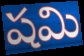
షమి